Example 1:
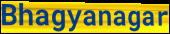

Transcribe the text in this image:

Bhagyanagar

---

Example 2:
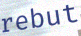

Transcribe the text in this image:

rebut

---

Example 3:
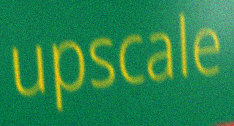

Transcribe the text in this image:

upscale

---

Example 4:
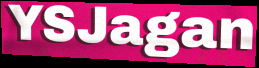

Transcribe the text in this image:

YSJagan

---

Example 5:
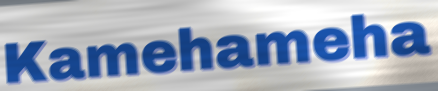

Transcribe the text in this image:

Kamehameha